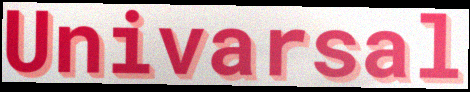
Univarsal